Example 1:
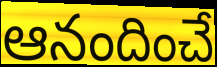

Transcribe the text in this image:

ఆనందించే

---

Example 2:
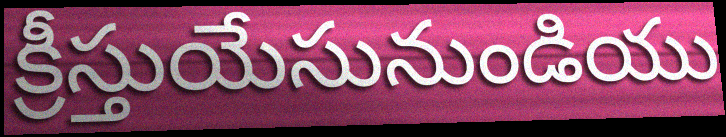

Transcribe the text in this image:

క్రీస్తుయేసునుండియు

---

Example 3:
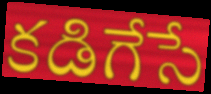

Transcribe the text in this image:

కడిగేసే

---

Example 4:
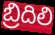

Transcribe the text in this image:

బ్రిదిలి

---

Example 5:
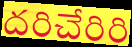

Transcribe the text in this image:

దరిచేరిరి